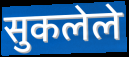
सुकलेले